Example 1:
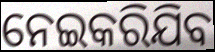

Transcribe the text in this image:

ନେଇକରିଯିବ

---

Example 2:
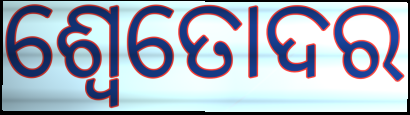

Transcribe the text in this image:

ଶ୍ୱେତୋଦର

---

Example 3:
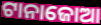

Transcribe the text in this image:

ଟାନାଜୋଆ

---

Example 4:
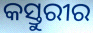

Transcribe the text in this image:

କସ୍ତୁରୀର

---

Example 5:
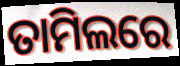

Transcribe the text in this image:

ତାମିଲରେ